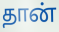
தான்